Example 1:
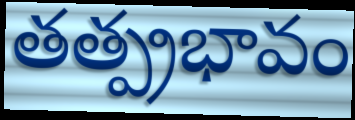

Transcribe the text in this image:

తత్ప్రభావం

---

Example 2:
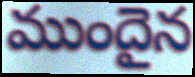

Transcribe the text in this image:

ముందైన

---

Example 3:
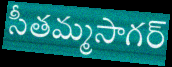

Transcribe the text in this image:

సీతమ్మసాగర్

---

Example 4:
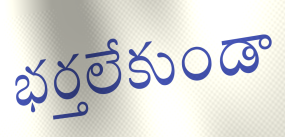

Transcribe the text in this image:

భర్తలేకుండా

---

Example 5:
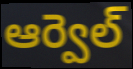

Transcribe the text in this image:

ఆర్వెల్